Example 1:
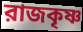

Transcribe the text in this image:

রাজকৃষ্ণ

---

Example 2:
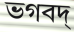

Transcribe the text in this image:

ভগবদ্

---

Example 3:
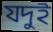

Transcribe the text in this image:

যদুই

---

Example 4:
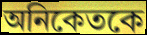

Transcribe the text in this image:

অনিকেতকে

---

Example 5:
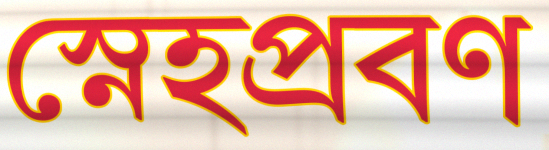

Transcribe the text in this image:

স্নেহপ্রবণ